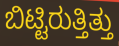
ಬಿಟ್ಟಿರುತ್ತಿತ್ತು